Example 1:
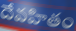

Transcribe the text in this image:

దేవహితం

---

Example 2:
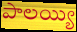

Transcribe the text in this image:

పాలయ్యి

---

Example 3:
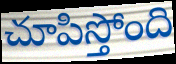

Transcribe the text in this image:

చూపిస్తోంది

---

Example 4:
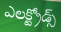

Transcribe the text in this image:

ఎలక్ట్రోడ్స్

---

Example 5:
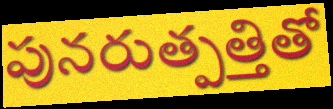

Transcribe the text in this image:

పునరుత్పత్తితో